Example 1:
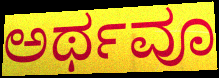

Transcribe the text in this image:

ಅರ್ಥವೂ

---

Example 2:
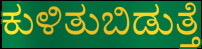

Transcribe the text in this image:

ಕುಳಿತುಬಿಡುತ್ತೆ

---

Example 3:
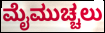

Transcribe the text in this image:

ಮೈಮುಚ್ಚಲು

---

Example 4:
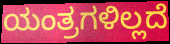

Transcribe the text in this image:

ಯಂತ್ರಗಳಿಲ್ಲದೆ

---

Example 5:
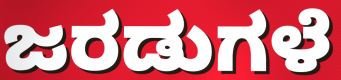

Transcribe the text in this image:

ಜರಡುಗಳೆ